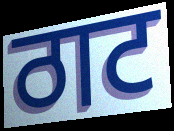
ठाट